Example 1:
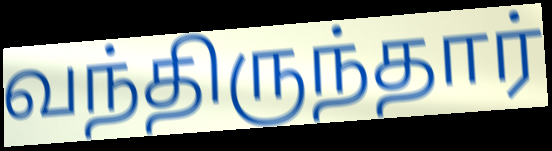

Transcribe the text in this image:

வந்திருந்தார்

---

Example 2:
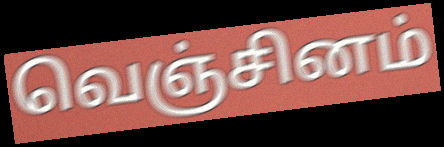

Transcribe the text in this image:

வெஞ்சினம்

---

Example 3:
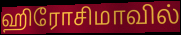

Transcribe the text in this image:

ஹிரோசிமாவில்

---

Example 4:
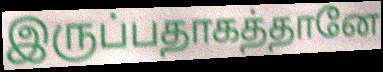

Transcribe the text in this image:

இருப்பதாகத்தானே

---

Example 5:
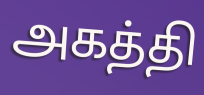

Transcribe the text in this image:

அகத்தி